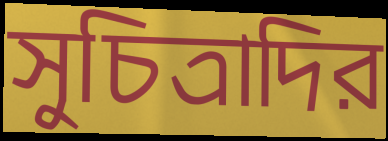
সুচিত্রাদির